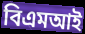
বিএমআই